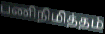
பணிநிமித்தம்